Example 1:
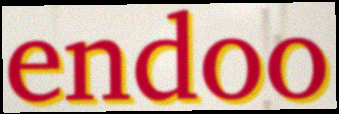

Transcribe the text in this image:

endoo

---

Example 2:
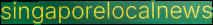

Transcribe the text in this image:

singaporelocalnews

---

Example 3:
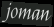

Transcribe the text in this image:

joman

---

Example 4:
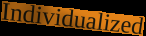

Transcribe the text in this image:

Individualized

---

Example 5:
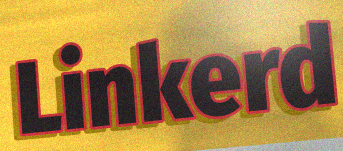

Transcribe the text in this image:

Linkerd